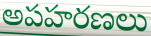
అపహరణలు